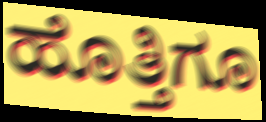
ಹೊತ್ತಿಗೂ